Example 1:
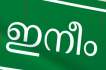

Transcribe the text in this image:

ഇനീം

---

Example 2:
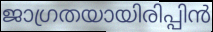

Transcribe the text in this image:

ജാഗ്രതയായിരിപ്പിൻ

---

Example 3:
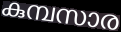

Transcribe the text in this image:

കുമ്പസാര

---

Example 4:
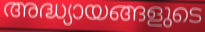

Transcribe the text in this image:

അദ്ധ്യായങ്ങളുടെ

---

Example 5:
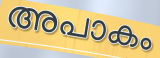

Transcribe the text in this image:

അപാകം